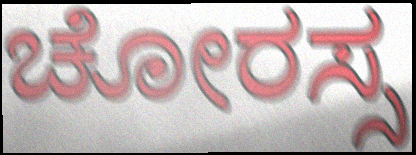
ಚೋರಸ್ಸ